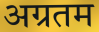
अग्रतम